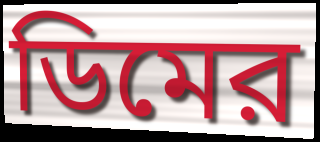
ডিমের